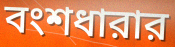
বংশধারার